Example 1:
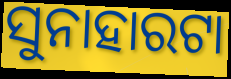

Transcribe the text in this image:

ସୁନାହାରଟା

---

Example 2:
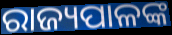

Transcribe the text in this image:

ରାଜ୍ୟପାଳଙ୍କ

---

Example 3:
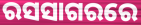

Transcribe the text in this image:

ରସସାଗରରେ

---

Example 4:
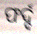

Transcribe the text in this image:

ଫର୍ଦ୍ଦ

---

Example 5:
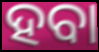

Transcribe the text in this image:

ହବା